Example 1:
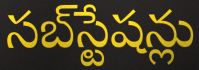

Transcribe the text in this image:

సబ్‌స్టేషన్లు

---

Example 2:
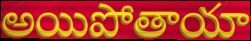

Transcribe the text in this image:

అయిపోతాయా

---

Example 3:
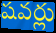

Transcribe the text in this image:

షవర్లు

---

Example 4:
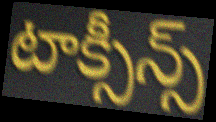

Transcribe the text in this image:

టాక్సీన్స్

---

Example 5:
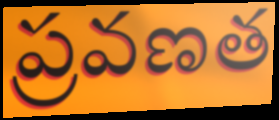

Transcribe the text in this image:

ప్రవణత